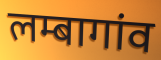
लम्बागांव